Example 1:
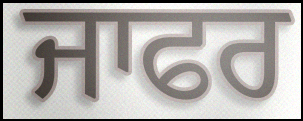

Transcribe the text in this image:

ਜਾਫਰ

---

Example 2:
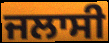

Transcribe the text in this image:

ਜਲਾਸੀ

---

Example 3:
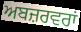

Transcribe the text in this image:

ਅਬਜ਼ਰਵਰਾਂ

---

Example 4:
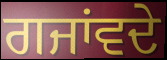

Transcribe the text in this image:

ਗਜਾਂਵਦੇ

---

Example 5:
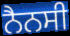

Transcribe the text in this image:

ਨੈਨਸੀ